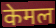
केमल